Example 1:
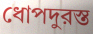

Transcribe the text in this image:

ধোপদুরস্ত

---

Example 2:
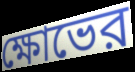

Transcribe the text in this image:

ক্ষোভের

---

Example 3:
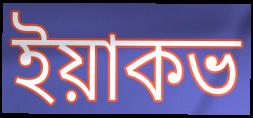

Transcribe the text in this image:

ইয়াকভ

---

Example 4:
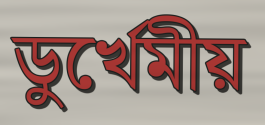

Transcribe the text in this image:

ডুর্খেমীয়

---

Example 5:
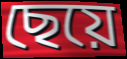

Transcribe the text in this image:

ছেয়ে